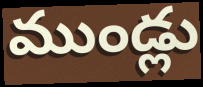
ముండ్లు